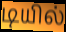
டியில்